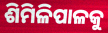
ଶିମିଳିପାଳକୁ